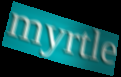
myrtle